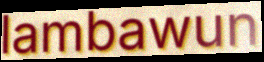
lambawun